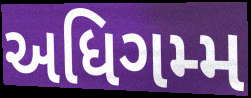
અધિગમ્મ